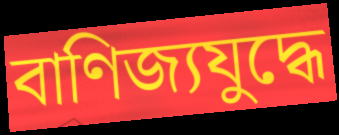
বাণিজ্যযুদ্ধে